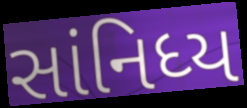
સાંનિધ્ય